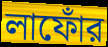
লাফোঁর